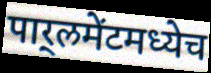
पार्लमेंटमध्येच